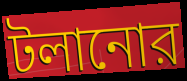
টলানোর